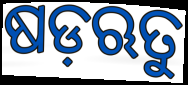
ଷଡ଼ଋତୁ